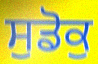
ਸੁਡੋਕੁ